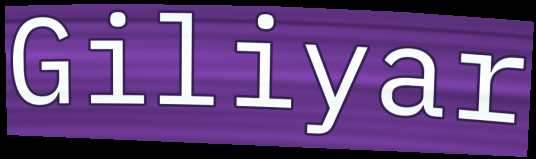
Giliyar